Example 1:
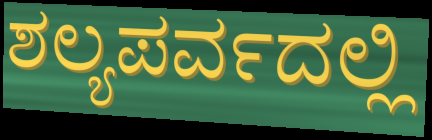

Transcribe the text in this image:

ಶಲ್ಯಪರ್ವದಲ್ಲಿ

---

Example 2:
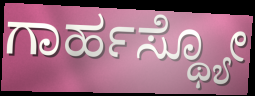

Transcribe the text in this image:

ಗಾರ್ಹಸ್ಥ್ಯೋ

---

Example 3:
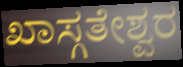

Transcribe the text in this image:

ಖಾಸ್ಗತೇಶ್ವರ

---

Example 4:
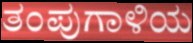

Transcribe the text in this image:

ತಂಪುಗಾಳಿಯ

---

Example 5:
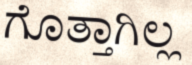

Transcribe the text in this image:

ಗೊತ್ತಾಗಿಲ್ಲ